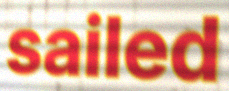
sailed